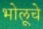
भोलूचे